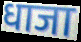
धाजा